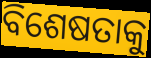
ବିଶେଷତାକୁ